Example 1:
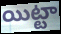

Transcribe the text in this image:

యిట్టా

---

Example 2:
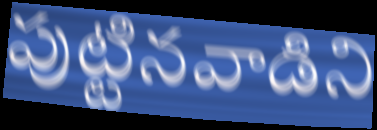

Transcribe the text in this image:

పుట్టినవాడిని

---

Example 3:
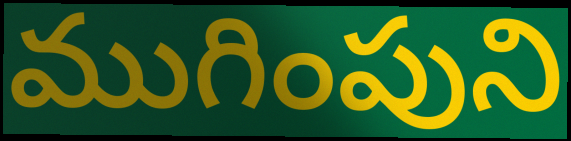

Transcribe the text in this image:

ముగింపుని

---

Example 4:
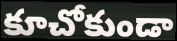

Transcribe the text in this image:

కూచోకుండా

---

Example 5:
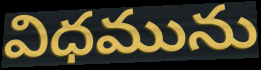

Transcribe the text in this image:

విధమును